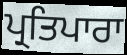
ਪ੍ਰਤਿਪਾਰਾ